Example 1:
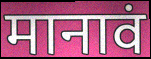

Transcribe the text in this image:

मानावं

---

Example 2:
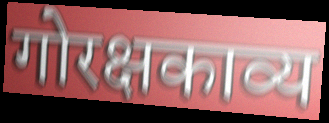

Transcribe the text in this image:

गोरक्षकाव्य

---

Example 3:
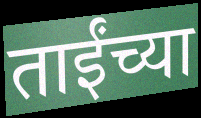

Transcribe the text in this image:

ताईंच्या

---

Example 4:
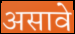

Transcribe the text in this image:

असावे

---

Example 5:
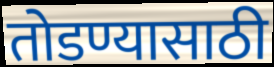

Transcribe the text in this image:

तोडण्यासाठी